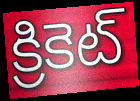
క్రికెట్